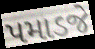
પમાડજે